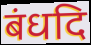
बंधदि